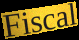
Fiscal